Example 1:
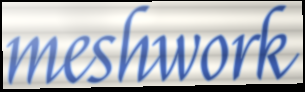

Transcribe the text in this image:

meshwork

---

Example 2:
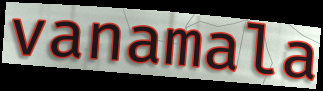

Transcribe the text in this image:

vanamala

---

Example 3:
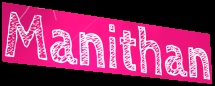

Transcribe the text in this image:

Manithan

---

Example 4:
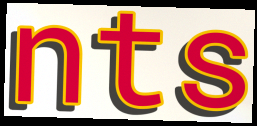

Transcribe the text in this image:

nts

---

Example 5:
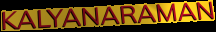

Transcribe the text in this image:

KALYANARAMAN